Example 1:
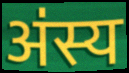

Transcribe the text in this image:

अ॑स्य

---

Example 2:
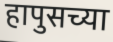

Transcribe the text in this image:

हापुसच्या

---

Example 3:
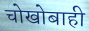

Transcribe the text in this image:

चोखोबाही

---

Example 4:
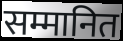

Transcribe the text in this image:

सम्मानित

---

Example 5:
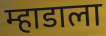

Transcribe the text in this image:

म्हाडाला